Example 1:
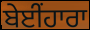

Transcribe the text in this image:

ਬੇਈਂਹਾਰਾ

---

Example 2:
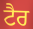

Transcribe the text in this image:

ਟੈਰ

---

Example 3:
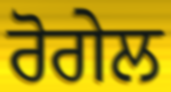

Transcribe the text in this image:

ਰੋਗੇਲ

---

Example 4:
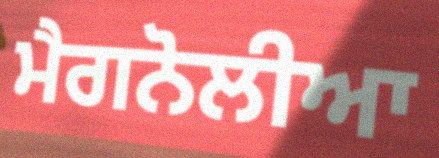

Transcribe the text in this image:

ਮੈਗਨੋਲੀਆ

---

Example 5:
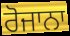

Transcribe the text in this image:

ਰੋਜਾਨਾ